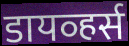
डायव्हर्स